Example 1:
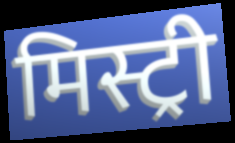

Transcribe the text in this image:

मिस्ट्री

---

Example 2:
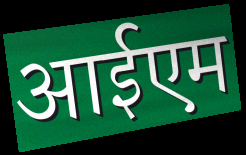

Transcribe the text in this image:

आईएम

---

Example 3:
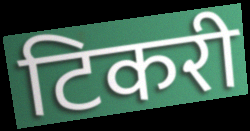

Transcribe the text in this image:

टिकरी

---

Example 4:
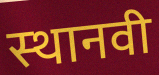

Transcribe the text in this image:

स्थानवी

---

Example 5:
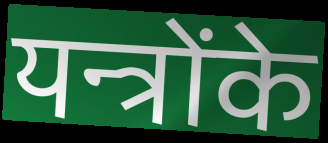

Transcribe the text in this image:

यन्त्रोंके